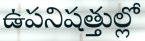
ఉపనిషత్తుల్లో